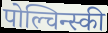
पोल्चिन्स्की